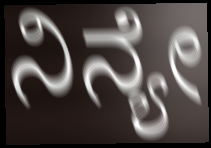
ನಿನ್ಯೇ